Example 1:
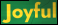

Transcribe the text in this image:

Joyful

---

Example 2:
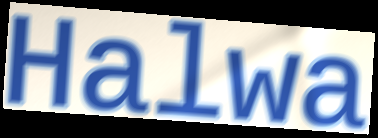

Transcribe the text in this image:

Halwa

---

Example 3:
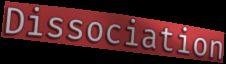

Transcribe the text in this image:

Dissociation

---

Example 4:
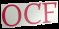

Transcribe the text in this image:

OCF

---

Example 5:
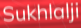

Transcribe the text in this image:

Sukhlalji